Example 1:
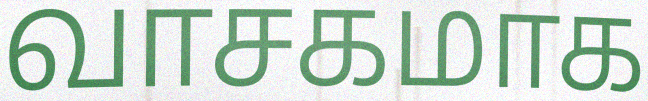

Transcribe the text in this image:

வாசகமாக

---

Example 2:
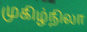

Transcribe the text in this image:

முகிழ்நிலா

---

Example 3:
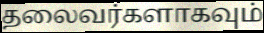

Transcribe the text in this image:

தலைவர்களாகவும்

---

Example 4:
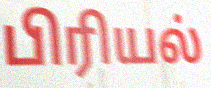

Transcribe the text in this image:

பிரியல்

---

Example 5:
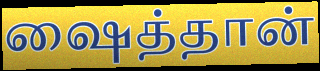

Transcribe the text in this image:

ஷைத்தான்